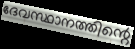
ദേവസ്ഥാനത്തിന്റെ